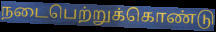
நடைபெற்றுக்கொண்டு